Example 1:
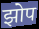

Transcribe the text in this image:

झोप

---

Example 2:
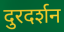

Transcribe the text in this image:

दुरदर्शन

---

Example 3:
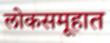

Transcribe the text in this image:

लोकसमूहात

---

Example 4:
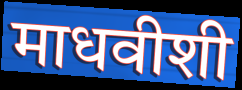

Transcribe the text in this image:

माधवीशी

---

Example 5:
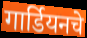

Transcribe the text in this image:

गार्डियनचे